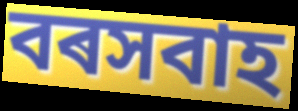
বৰসবাহ